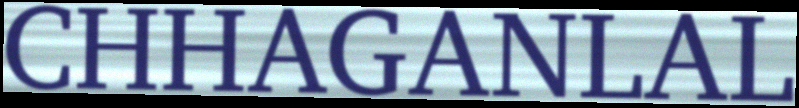
CHHAGANLAL